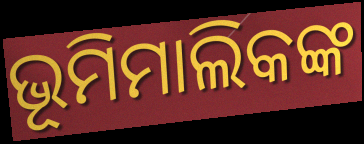
ଭୂମିମାଲିକଙ୍କ